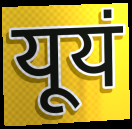
यूयं